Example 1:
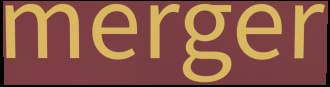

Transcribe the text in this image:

merger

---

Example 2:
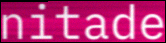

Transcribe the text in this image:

nitade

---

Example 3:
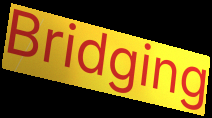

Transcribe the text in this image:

Bridging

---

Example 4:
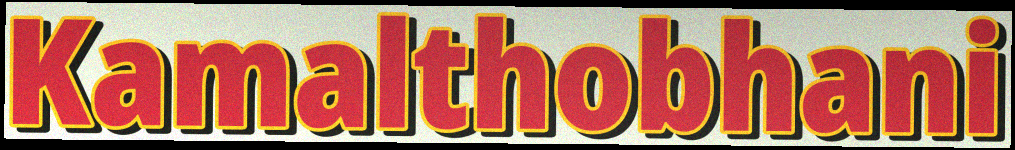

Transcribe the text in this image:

Kamalthobhani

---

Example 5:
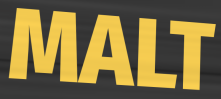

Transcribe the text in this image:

MALT